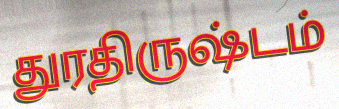
துரதிருஷ்டம்